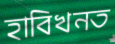
হাবিখনত